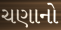
ચણાનો